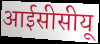
आईसीसीयू